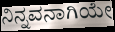
ನಿನ್ನವನಾಗಿಯೇ